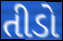
તીડો